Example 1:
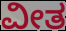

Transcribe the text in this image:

ವೀತ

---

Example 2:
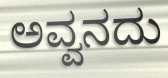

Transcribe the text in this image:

ಅವ್ವನದು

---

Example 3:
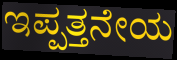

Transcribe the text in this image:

ಇಪ್ಪತ್ತನೇಯ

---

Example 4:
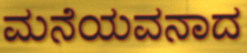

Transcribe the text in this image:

ಮನೆಯವನಾದ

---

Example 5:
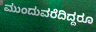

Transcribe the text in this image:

ಮುಂದುವರೆದಿದ್ದರೂ